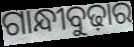
ଗାନ୍ଧୀବୁଢ଼ାର